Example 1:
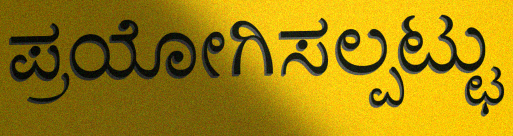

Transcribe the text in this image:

ಪ್ರಯೋಗಿಸಲ್ಪಟ್ಟು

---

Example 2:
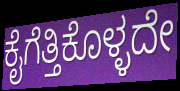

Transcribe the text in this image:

ಕೈಗೆತ್ತಿಕೊಳ್ಳದೇ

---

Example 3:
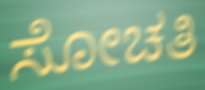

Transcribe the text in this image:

ಸೋಚತಿ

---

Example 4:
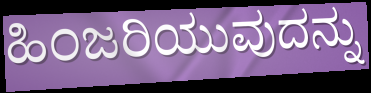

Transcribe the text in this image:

ಹಿಂಜರಿಯುವುದನ್ನು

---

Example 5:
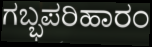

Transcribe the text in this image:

ಗಬ್ಭಪರಿಹಾರಂ